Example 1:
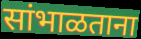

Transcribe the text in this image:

सांभाळताना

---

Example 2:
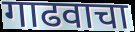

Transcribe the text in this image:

गाढवाचा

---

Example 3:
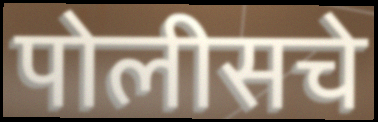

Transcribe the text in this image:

पोलीसचे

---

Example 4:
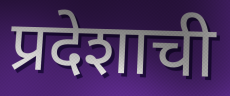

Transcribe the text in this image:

प्रदेशाची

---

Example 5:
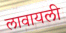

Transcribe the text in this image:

लावायली